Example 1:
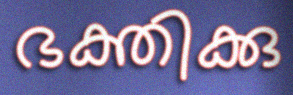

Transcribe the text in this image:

ഭക്തിക്കു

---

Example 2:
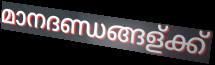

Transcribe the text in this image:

മാനദണ്ഡങ്ങള്ക്ക്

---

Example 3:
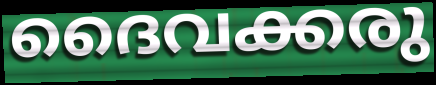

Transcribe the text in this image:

ദൈവക്കരു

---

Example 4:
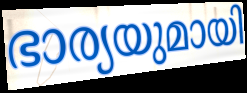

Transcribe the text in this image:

ഭാര്യയുമായി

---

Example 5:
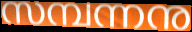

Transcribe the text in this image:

സമ്പന്നനു